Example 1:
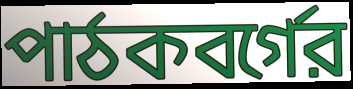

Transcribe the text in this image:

পাঠকবর্গের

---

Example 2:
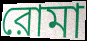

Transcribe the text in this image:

রোমা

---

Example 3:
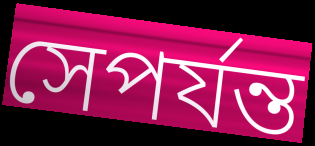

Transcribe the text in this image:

সেপর্যন্ত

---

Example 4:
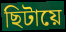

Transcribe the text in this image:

ছিটায়ে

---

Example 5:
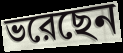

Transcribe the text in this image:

ভরেছেন